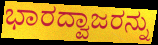
ಭಾರದ್ವಾಜರನ್ನು